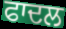
ਫਾਦਲ